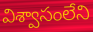
విశ్వాసంలేని